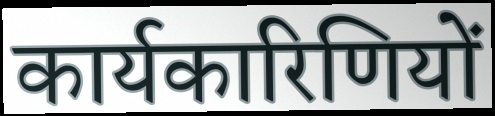
कार्यकारिणियों